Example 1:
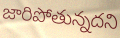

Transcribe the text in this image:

జారిపోతున్నదని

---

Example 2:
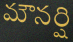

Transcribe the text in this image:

మౌనర్షి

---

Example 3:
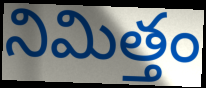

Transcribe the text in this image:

నిమిత్తం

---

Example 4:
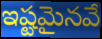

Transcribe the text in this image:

ఇష్టమైనవే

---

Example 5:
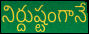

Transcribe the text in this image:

నిర్దుష్టంగానే